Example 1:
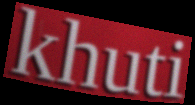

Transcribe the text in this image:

khuti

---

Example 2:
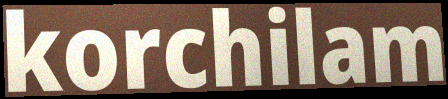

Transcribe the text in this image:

korchilam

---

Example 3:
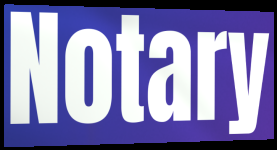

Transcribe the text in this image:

Notary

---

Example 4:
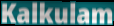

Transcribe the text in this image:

Kalkulam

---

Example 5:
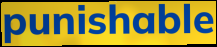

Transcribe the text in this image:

punishable